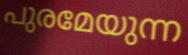
പുരമേയുന്ന